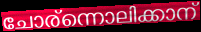
ചോര്ന്നൊലിക്കാന്